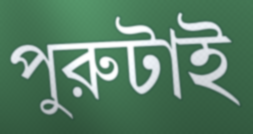
পুরুটাই